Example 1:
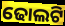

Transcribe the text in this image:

ଢୋଲଟି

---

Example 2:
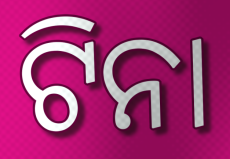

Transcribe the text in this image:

ଟିନା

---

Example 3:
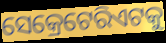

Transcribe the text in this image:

ସେକ୍ରେଟେରିଏଟକୁ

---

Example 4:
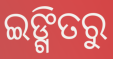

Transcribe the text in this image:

ଇଙ୍ଗିତରୁ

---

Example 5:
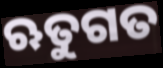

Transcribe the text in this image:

ଋତୁଗତ